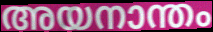
അയനാന്തം